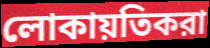
লোকায়তিকরা